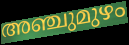
അഞ്ചുമുഴം